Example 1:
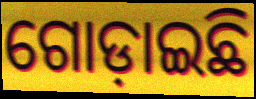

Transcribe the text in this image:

ଗୋଡ଼ାଇଛି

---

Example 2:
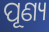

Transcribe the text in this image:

ପୂଣ୍ୟ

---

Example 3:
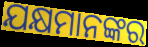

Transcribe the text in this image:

ଯକ୍ଷମାନଙ୍କର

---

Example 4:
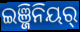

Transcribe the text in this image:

ଇଞ୍ଜିନିୟର୍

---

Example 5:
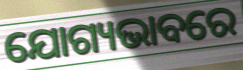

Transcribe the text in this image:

ଯୋଗ୍ୟଭାବରେ